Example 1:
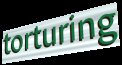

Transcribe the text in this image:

torturing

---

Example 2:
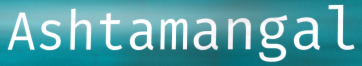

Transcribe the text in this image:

Ashtamangal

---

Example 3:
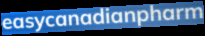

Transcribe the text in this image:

easycanadianpharm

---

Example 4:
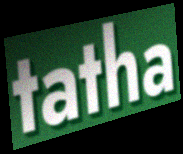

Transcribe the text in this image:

tatha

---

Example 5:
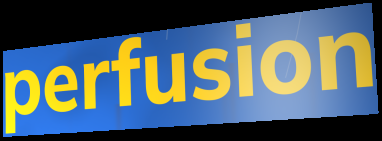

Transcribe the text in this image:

perfusion